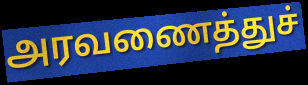
அரவணைத்துச்